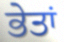
ਭੇਤਾਂ